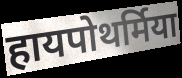
हायपोथर्मिया